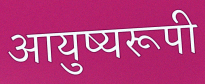
आयुष्यरूपी